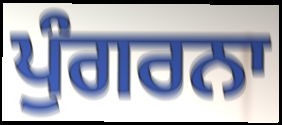
ਪੁੰਗਰਨਾ